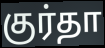
குர்தா